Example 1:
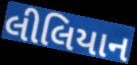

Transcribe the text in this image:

લીલિયાન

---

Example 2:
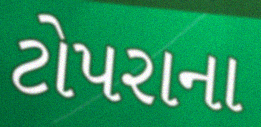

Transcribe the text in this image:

ટોપરાના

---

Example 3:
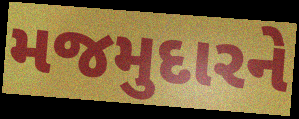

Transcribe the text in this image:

મજમુદારને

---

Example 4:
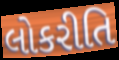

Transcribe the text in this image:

લોકરીતિ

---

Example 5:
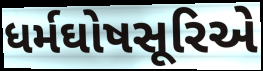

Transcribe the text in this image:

ધર્મઘોષસૂરિએ